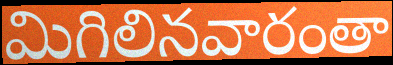
మిగిలినవారంతా